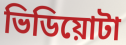
ভিডিয়োটা